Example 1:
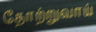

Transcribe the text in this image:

தோற்றுவாய்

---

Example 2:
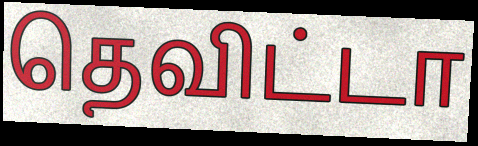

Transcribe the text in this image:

தெவிட்டா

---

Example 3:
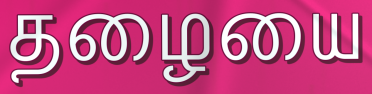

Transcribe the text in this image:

தழையை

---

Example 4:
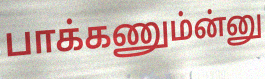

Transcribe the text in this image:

பாக்கணும்ன்னு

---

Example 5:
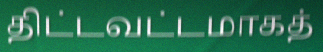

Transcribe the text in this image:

திட்டவட்டமாகத்